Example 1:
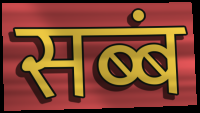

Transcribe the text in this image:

सब्बं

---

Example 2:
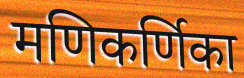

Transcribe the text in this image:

मणिकर्णिका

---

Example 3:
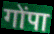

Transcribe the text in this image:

गोंपा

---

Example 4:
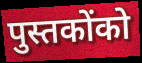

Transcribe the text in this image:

पुस्तकोंको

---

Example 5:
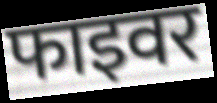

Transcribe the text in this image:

फाइवर